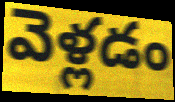
వెళ్లడం